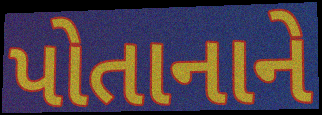
પોતાનાને